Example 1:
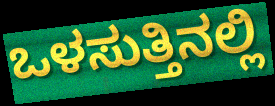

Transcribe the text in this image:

ಒಳಸುತ್ತಿನಲ್ಲಿ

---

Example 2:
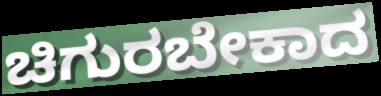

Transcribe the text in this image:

ಚಿಗುರಬೇಕಾದ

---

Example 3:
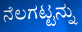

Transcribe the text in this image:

ನೆಲಗಟ್ಟನ್ನು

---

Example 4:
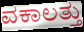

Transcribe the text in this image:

ವಕಾಲತ್ತು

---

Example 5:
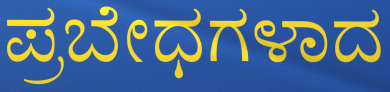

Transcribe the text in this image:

ಪ್ರಬೇಧಗಳಾದ